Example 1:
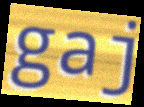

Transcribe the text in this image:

gaj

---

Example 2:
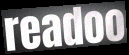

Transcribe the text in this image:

readoo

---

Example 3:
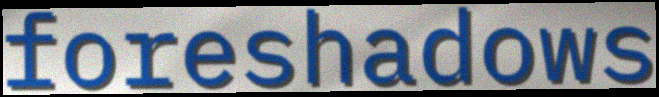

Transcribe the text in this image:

foreshadows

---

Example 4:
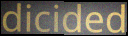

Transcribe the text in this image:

dicided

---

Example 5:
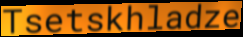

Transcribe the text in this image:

Tsetskhladze